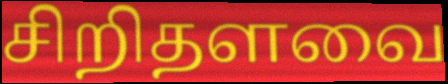
சிறிதளவை